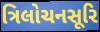
ત્રિલોચનસૂરિ